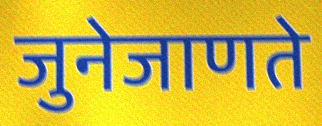
जुनेजाणते